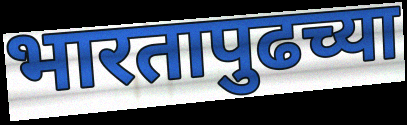
भारतापुढच्या